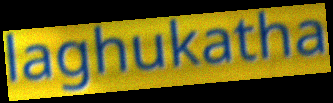
laghukatha